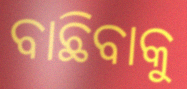
ବାଛିବାକୁ